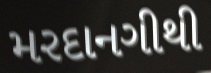
મરદાનગીથી